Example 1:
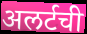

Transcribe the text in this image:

अलर्टची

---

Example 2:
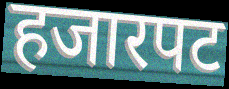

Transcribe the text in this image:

हजारपट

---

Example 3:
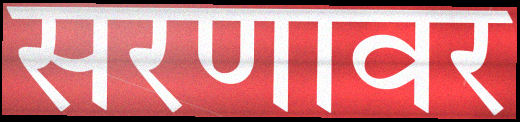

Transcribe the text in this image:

सरणावर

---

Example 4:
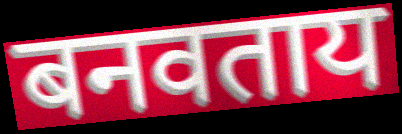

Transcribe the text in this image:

बनवताय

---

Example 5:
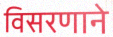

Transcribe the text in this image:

विसरणाने